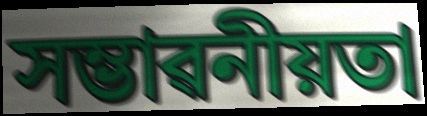
সম্ভাৱনীয়তা